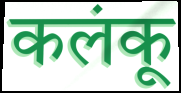
कलंकू